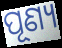
ପୂଣ୍ୟ